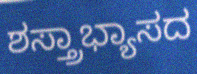
ಶಸ್ತ್ರಾಭ್ಯಾಸದ